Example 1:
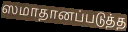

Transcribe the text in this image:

ஸமாதானப்படுத்த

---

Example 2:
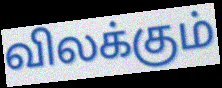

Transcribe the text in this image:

விலக்கும்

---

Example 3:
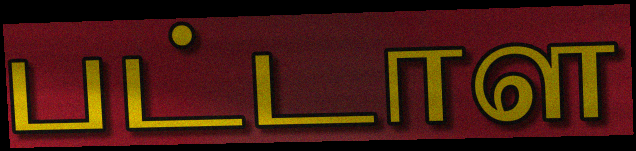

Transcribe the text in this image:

பட்டாள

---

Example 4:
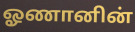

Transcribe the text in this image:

ஓணானின்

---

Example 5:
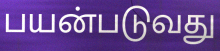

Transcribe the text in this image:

பயன்படுவது